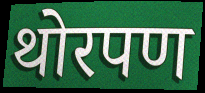
थोरपण